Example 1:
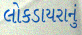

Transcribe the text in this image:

લોકડાયરાનું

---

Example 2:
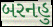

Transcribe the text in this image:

બરનહુ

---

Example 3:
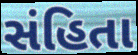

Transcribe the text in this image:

સંહિતા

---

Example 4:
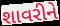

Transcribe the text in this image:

શાવરીને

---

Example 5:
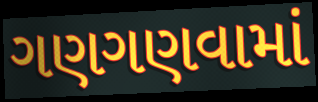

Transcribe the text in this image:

ગણગણવામાં